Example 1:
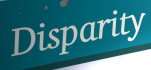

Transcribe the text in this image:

Disparity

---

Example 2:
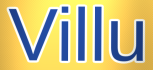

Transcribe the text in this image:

Villu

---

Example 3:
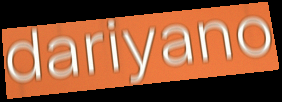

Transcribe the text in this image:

dariyano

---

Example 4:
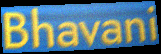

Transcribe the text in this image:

Bhavani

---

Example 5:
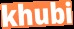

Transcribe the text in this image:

khubi